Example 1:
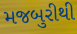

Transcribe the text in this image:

મજબુરીથી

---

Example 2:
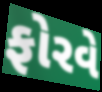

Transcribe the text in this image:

ફોરવે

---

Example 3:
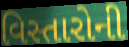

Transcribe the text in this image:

વિસ્તારોની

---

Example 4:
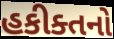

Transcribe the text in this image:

હકીક્તનો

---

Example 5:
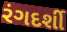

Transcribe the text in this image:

રંગદર્શી